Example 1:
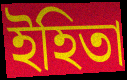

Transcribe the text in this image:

ইহিতা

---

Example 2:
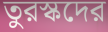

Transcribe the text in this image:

তুরস্কদের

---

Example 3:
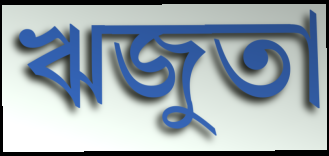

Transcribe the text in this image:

ঋজুতা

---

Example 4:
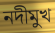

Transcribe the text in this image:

নদীমুখ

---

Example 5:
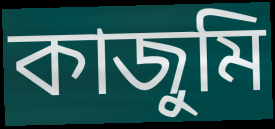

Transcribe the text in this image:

কাজুমি